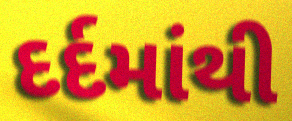
દર્દમાંથી